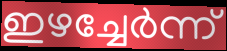
ഇഴച്ചേർന്ന്